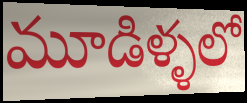
మూడిళ్ళలో